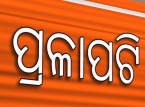
ପ୍ରଳାପଟି